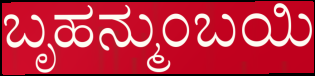
ಬೃಹನ್ಮುಂಬಯಿ